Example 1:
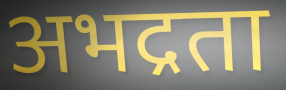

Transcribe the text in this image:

अभद्रता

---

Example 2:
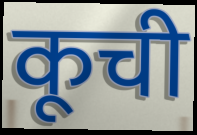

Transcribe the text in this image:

कूची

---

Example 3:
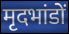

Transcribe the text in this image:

मृदभांडों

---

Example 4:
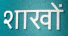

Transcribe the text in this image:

शाखों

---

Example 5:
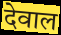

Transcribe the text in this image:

देवाल